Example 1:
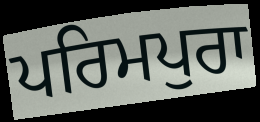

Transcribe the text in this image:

ਪਰਿਮਪੁਰਾ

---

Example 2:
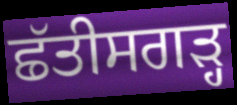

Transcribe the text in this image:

ਛੱਤੀਸਗਡ਼੍ਹ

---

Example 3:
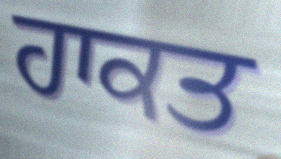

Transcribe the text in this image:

ਹਾਕਤ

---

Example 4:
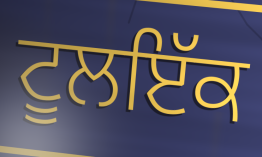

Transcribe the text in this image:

ਟੂਲਇੱਕ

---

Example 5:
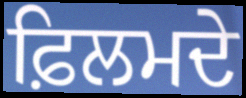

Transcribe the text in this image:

ਫ਼ਿਲਮਦੇ